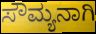
ಸೌಮ್ಯನಾಗಿ